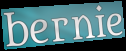
bernie